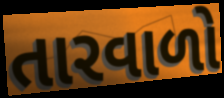
તારવાળો